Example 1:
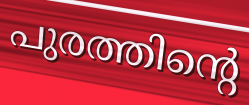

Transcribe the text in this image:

പുരത്തിന്റെ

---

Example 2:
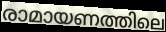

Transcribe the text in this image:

രാമായണത്തിലെ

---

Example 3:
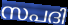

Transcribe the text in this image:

സപദി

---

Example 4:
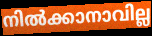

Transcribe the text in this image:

നിൽക്കാനാവില്ല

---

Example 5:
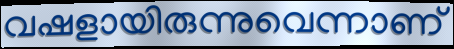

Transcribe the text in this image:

വഷളായിരുന്നുവെന്നാണ്